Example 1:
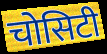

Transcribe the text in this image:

चोसिटी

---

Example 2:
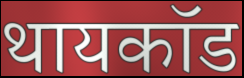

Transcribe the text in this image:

थायकॉड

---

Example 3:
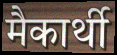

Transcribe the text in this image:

मैकार्थी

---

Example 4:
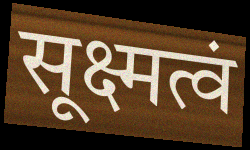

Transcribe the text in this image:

सूक्ष्मत्वं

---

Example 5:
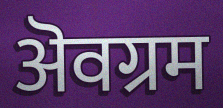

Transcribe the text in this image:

ऄवग्रम